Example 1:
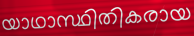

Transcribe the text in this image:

യാഥാസ്ഥിതികരായ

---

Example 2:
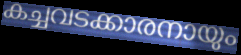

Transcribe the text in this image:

കച്ചവടക്കാരനായും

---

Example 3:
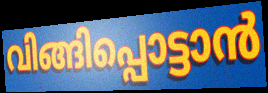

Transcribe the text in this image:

വിങ്ങിപ്പൊട്ടാൻ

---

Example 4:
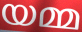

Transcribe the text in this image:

യമ്മ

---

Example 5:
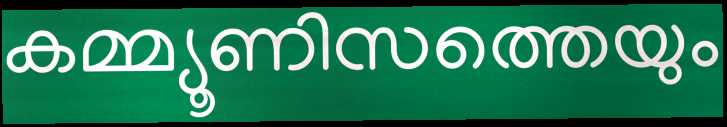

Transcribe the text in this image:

കമ്മ്യൂണിസത്തെയും